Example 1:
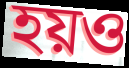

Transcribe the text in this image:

হয়ও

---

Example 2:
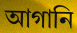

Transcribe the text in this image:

আগানি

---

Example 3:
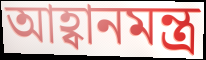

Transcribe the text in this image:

আহ্বানমন্ত্র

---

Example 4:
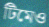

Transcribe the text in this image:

টিমেও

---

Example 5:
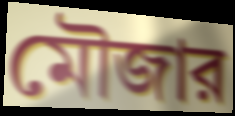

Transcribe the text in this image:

মৌজার